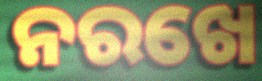
ନରଖେ